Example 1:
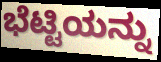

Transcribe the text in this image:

ಭೆಟ್ಟಿಯನ್ನು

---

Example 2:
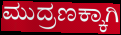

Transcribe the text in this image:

ಮುದ್ರಣಕ್ಕಾಗಿ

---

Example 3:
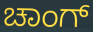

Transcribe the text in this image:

ಚಾಂಗ್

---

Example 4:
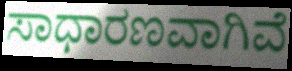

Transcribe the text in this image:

ಸಾಧಾರಣವಾಗಿವೆ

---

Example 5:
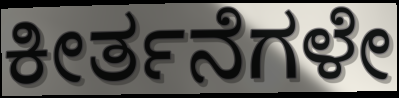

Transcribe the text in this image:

ಕೀರ್ತನೆಗಳೇ